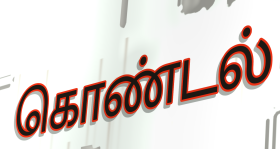
கொண்டல்